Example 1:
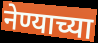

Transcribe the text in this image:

नेण्याच्या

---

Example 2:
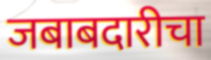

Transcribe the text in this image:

जबाबदारीचा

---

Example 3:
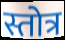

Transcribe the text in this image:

स्तोत्र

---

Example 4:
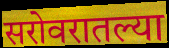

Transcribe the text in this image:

सरोवरातल्या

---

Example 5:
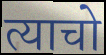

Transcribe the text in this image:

त्याचो